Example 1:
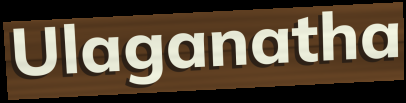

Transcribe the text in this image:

Ulaganatha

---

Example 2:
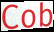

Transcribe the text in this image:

Cob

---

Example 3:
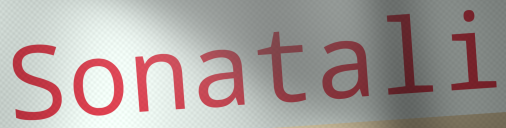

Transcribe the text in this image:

Sonatali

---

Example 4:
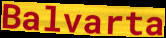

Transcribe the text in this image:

Balvarta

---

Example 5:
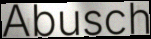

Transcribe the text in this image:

Abusch